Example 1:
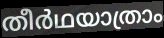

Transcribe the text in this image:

തീർഥയാത്രാം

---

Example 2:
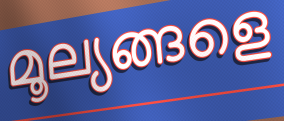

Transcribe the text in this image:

മൂല്യങ്ങളെ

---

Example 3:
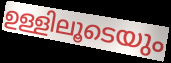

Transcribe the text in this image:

ഉള്ളിലൂടെയും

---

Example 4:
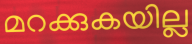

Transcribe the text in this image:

മറക്കുകയില്ല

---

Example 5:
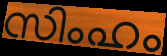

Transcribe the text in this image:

സിംഹം